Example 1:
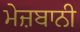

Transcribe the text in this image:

ਮੇਜ਼ਬਾਨੀ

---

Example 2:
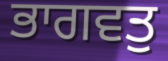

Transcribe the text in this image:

ਭਾਗਵਤੁ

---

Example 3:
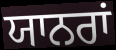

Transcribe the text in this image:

ਯਾਨਰਾਂ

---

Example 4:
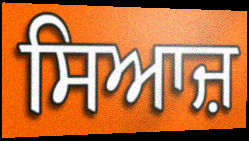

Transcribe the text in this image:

ਸਿਆਜ਼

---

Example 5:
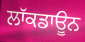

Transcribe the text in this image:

ਲਾੱਕਡਾਊਨ